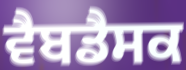
ਵੈਬਡੈਸਕ